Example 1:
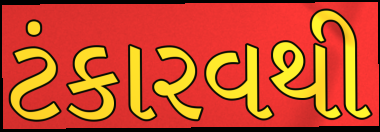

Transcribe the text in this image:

ટંકારવથી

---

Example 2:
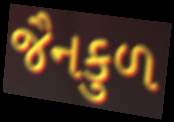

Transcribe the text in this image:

જૈનકુળ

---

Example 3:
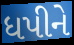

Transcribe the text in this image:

ધપીને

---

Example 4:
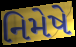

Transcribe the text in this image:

નિમેષે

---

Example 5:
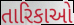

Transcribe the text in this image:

તારિકાઓ